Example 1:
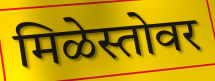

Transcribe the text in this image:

मिळेस्तोवर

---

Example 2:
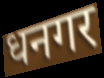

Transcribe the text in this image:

धनगर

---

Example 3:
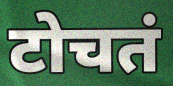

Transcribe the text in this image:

टोचतं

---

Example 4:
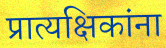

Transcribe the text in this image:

प्रात्यक्षिकांना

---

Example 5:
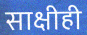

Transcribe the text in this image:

साक्षीही